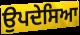
ਉਪਦੇਸਿਆ